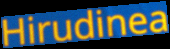
Hirudinea